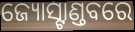
ଜ୍ୟୋସ୍ଟାଣ୍ଡବରେ